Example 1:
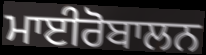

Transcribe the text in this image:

ਮਾਈਰੋਬਾਲਨ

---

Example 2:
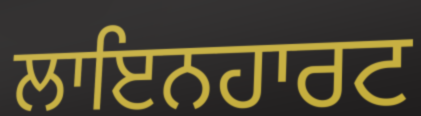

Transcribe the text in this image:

ਲਾਇਨਹਾਰਟ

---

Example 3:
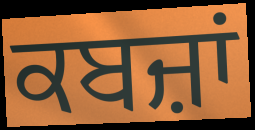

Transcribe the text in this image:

ਕਬਜ਼ਾਂ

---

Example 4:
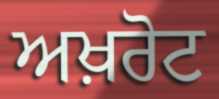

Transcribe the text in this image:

ਅਖ਼ਰੋਟ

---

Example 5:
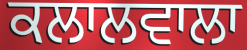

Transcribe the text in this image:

ਕਲਾਲਵਾਲਾ